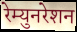
रेम्युनरेशन